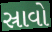
સ્રાવો